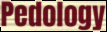
Pedology